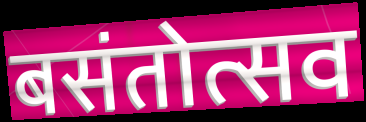
बसंतोत्सव